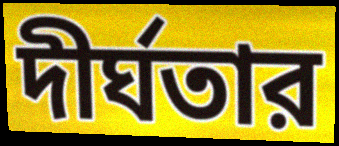
দীর্ঘতার